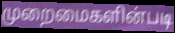
முறைமைகளின்படி